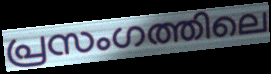
പ്രസംഗത്തിലെ